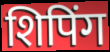
शिपिंग